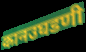
कानउघडणी